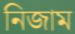
নিজাম